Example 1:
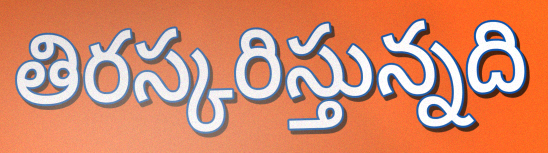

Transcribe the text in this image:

తిరస్కరిస్తున్నది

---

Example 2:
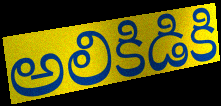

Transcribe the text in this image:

అలికిడికి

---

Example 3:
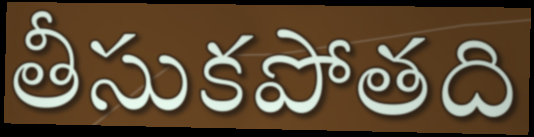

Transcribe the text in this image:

తీసుకపోతది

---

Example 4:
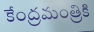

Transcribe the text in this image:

కేంద్రమంత్రికి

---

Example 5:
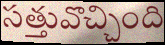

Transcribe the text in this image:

సత్తువొచ్చింది